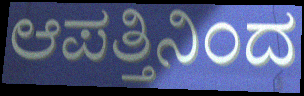
ಆಪತ್ತಿನಿಂದ